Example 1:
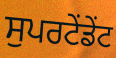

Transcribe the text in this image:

ਸੁਪਰਟੇਂਡੇਂਟ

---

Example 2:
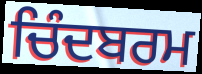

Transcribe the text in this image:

ਚਿੰਦਬਰਮ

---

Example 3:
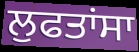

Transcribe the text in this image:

ਲੁਫਤਾਂਸਾ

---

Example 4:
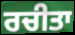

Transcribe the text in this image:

ਰਚੀਤਾ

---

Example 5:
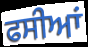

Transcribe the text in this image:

ਫਸੀਆਂ